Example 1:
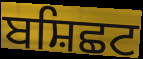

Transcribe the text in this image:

ਬਸ਼ਿਛਟ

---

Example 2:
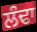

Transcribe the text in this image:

ਲੰਢਾ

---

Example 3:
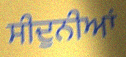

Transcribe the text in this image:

ਸੀਦੁਨੀਆਂ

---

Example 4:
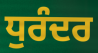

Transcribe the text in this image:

ਧੁਰੰਦਰ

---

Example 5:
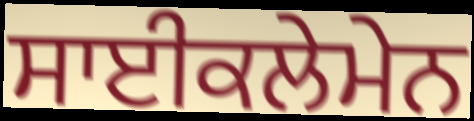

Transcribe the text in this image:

ਸਾਈਕਲੇਮੇਨ